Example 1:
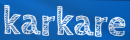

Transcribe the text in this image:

karkare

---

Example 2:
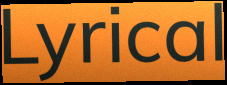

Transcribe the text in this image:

Lyrical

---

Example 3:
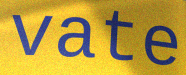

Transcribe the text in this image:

vate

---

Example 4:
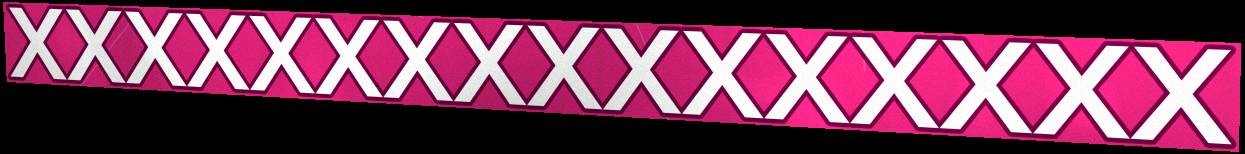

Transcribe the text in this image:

xxxxxxxxxxxxxxxx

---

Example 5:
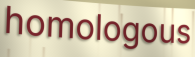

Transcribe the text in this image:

homologous